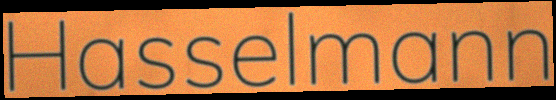
Hasselmann